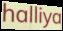
halliya